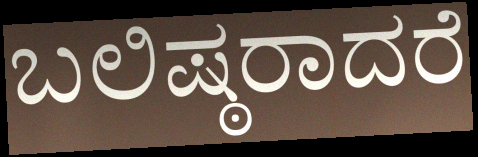
ಬಲಿಷ್ಠರಾದರೆ